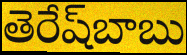
తెరేష్‌బాబు